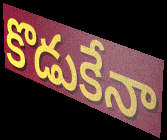
కొడుకేనా